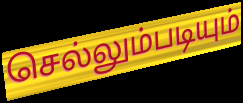
செல்லும்படியும்